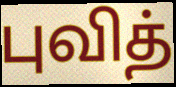
புவித்